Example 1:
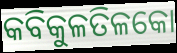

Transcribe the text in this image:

କବିକୁଳତିଳକୋ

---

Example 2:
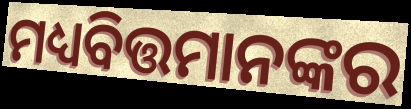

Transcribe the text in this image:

ମଧ୍ୟବିତ୍ତମାନଙ୍କର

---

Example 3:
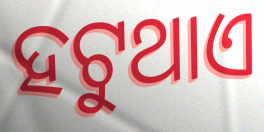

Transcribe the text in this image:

ହଟୁଥାଏ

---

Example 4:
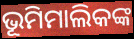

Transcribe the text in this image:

ଭୂମିମାଲିକଙ୍କ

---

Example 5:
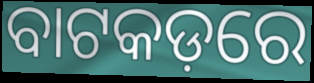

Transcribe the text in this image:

ବାଟକଡ଼ରେ